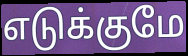
எடுக்குமே